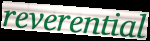
reverential